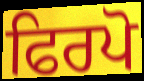
ਫਿਰਪੋ